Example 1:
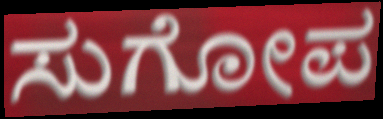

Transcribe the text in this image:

ಸುಗೋಪ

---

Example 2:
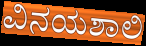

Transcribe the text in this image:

ವಿನಯಶಾಲಿ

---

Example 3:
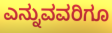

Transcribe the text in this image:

ಎನ್ನುವವರಿಗೂ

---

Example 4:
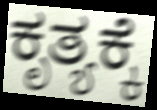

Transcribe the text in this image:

ಕೃತ್ಯಕ್ಕೆ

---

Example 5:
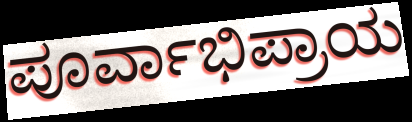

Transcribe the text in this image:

ಪೂರ್ವಾಭಿಪ್ರಾಯ